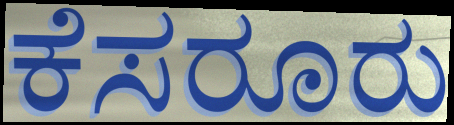
ಕೆಸರೂರು